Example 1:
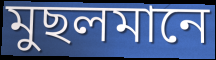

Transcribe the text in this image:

মুছলমানে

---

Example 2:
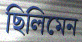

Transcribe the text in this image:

ছিলিমেন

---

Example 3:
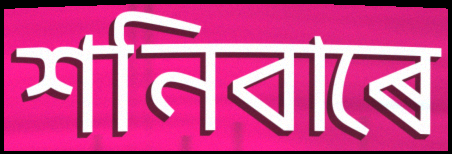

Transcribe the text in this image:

শনিবাৰে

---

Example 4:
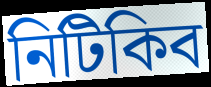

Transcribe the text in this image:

নিটিকিব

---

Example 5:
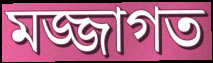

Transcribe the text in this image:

মজ্জাগত